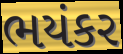
ભયંકર